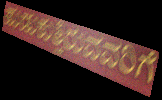
ಹುಡುಕುತ್ತಿರುವವರಿಗೆ